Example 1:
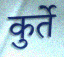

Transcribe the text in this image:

कुर्ते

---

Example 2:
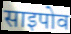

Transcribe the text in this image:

साइपोव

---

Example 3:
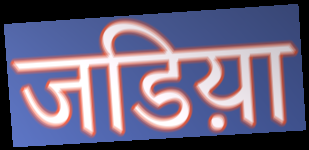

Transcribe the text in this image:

जडिय़ा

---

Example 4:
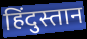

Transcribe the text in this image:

हिंदुस्तान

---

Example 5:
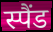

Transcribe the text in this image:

स्पैंड